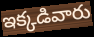
ఇక్కడివారు